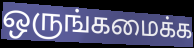
ஒருங்கமைக்க